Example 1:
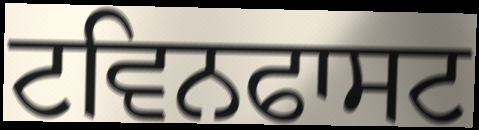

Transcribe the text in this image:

ਟਵਿਨਫਾਸਟ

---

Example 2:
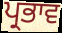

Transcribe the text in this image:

ਪ੍ਰਭਾਵ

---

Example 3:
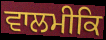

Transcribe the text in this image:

ਵਾਲਮੀਕਿ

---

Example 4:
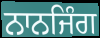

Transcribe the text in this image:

ਨਾਨਜਿੰਗ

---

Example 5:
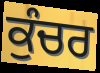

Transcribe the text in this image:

ਕੁੰਚਰ